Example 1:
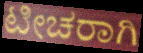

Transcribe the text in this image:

ಟೀಚರಾಗಿ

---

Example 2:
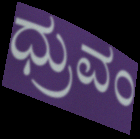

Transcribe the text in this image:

ಧ್ರುವಂ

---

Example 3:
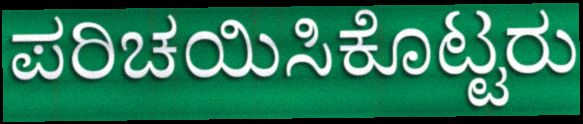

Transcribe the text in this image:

ಪರಿಚಯಿಸಿಕೊಟ್ಟರು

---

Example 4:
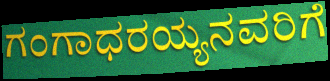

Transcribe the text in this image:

ಗಂಗಾಧರಯ್ಯನವರಿಗೆ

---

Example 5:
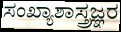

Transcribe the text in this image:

ಸಂಖ್ಯಾಶಾಸ್ತ್ರಜ್ಞರ